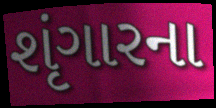
શૃંગારના